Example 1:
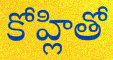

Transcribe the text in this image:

కోహ్లితో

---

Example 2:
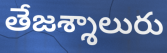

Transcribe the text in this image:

తేజశ్శాలురు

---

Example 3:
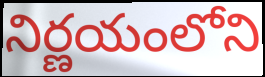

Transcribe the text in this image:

నిర్ణయంలోని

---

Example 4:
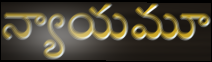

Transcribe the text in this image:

న్యాయమూ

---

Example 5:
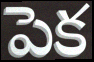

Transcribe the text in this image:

పెక